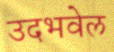
उदभवेल